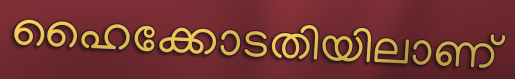
ഹൈക്കോടതിയിലാണ്